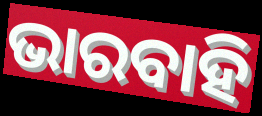
ଭାରବାହି